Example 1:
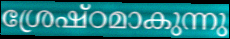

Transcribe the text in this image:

ശ്രേഷ്ഠമാകുന്നു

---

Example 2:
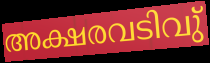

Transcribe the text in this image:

അക്ഷരവടിവു്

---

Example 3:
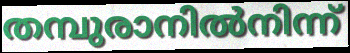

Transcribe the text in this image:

തമ്പുരാനിൽനിന്ന്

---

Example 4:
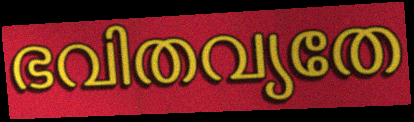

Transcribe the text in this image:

ഭവിതവ്യതേ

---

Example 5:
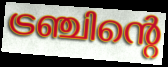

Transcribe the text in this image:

ട്രഞ്ചിന്റെ